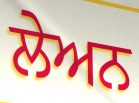
ਲੇਅਨ